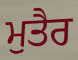
ਮੁਤੈਰ